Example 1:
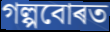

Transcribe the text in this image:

গল্পবোৰত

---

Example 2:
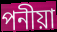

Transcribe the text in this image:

পনীয়া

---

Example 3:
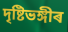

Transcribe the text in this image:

দৃষ্টিভঙ্গীৰ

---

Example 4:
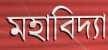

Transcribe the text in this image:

মহাবিদ্যা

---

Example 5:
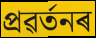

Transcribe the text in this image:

প্ৰৱৰ্তনৰ